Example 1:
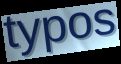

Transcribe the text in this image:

typos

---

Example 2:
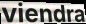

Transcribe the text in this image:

viendra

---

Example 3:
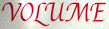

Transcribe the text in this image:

VOLUME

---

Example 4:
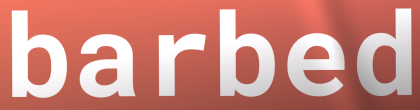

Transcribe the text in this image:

barbed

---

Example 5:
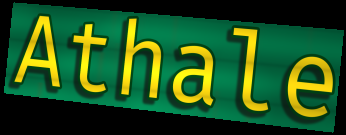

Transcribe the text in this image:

Athale